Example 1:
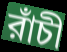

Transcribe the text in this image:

রাঁচী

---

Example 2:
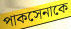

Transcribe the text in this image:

পাকসেনাকে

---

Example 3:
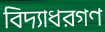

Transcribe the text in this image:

বিদ্যাধরগণ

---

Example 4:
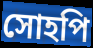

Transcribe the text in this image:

সোহপি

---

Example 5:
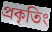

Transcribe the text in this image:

প্রকৃতিং